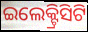
ଇଲେକ୍ଟ୍ରିସିଟି